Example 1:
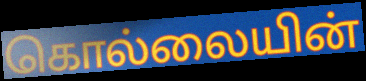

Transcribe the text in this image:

கொல்லையின்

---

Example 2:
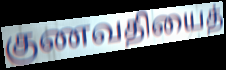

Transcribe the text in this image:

குணவதியைத்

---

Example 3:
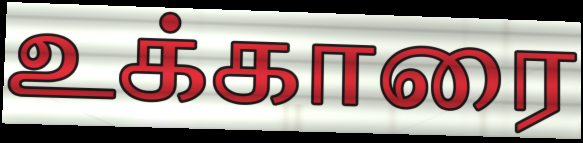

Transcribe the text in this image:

உக்காரை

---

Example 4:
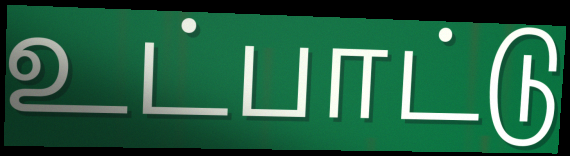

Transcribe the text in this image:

உட்பாட்டு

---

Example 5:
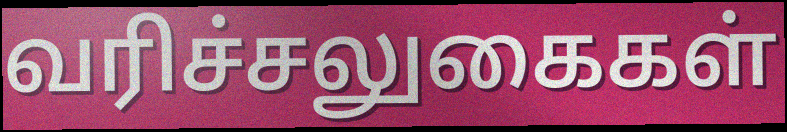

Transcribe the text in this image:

வரிச்சலுகைகள்